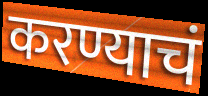
करण्याचं